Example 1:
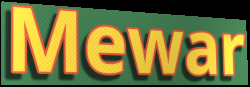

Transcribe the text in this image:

Mewar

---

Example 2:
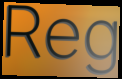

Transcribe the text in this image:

Reg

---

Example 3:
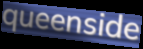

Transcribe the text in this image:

queenside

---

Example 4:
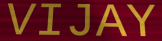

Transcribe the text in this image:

VIJAY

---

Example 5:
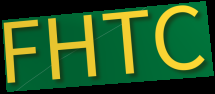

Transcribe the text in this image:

FHTC